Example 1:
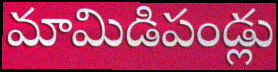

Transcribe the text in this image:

మామిడిపండ్లు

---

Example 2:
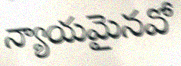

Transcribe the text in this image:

న్యాయమైనవో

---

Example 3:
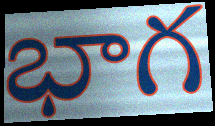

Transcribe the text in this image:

భాగ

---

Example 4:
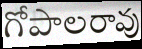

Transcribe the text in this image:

గోపాలరావు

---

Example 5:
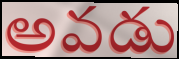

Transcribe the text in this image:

అవడు